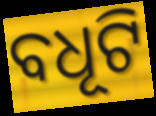
ବଧୂଟି